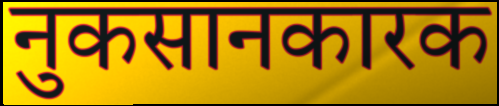
नुकसानकारक